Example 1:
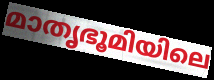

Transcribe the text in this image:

മാതൃഭൂമിയിലെ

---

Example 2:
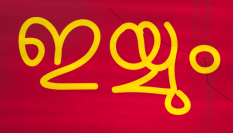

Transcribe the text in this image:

ഇയ്യും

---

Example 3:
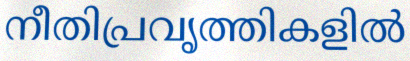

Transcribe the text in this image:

നീതിപ്രവൃത്തികളിൽ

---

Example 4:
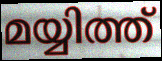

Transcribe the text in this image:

മയ്യിത്ത്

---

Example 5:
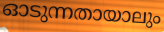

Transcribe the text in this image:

ഓടുന്നതായാലും